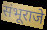
संभूराजे